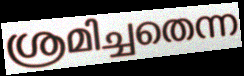
ശ്രമിച്ചതെന്ന